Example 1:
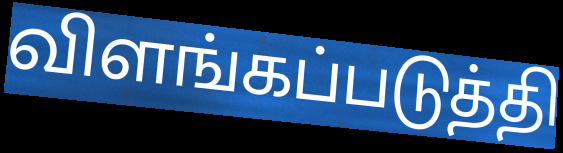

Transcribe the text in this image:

விளங்கப்படுத்தி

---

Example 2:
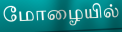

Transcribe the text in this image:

மோழையில்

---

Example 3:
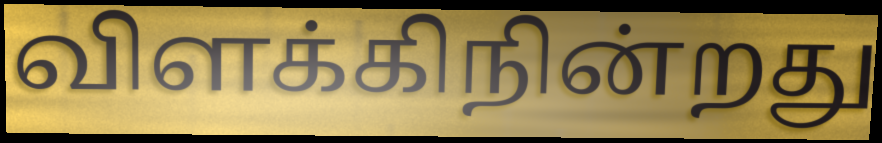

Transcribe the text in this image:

விளக்கிநின்றது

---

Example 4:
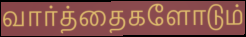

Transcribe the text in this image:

வார்த்தைகளோடும்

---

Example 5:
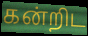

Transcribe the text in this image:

கன்றிட